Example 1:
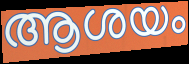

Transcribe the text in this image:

ആശയം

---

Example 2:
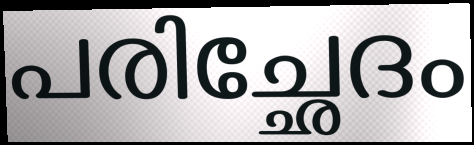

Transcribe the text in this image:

പരിച്ഛേദം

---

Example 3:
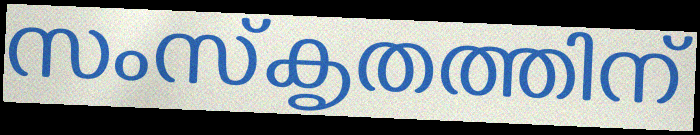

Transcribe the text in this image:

സംസ്‌കൃതത്തിന്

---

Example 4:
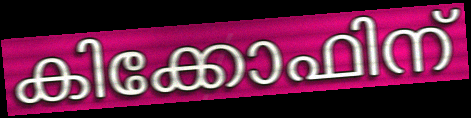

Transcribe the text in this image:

കിക്കോഫിന്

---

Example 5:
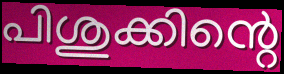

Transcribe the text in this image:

പിശുക്കിന്റെ